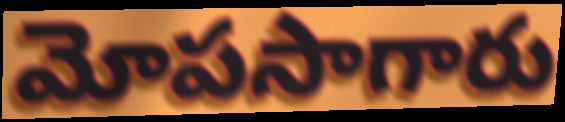
మోపసాగారు